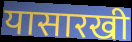
यासारखी